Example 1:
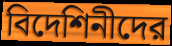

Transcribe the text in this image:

বিদেশিনীদের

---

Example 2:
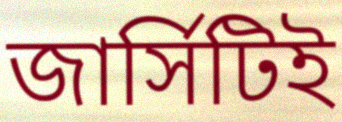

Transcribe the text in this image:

জার্সিটিই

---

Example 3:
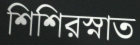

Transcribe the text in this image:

শিশিরস্নাত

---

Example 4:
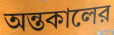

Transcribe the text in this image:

অন্তকালের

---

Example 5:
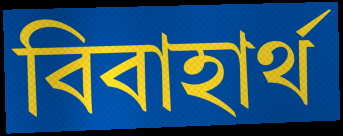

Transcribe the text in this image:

বিবাহার্থ